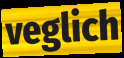
veglich